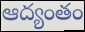
ఆద్యంతం